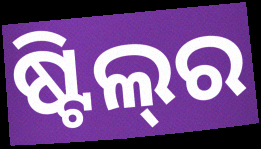
ଷ୍ଟିଲ୍‌ର